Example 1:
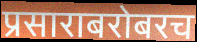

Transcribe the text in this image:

प्रसाराबरोबरच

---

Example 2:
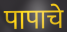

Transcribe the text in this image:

पापाचे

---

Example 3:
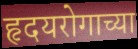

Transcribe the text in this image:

हृदयरोगाच्या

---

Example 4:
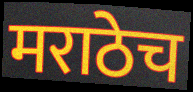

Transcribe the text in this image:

मराठेच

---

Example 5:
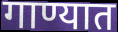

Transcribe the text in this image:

गाण्यात